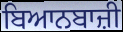
ਬਿਆਨਬਾਜ਼ੀ